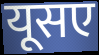
यूसए